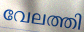
വേലത്തി